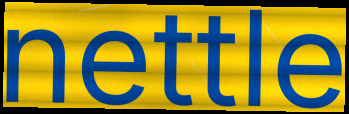
nettle